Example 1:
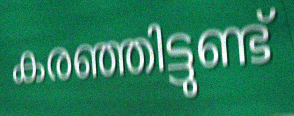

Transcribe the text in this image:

കരഞ്ഞിട്ടുണ്ട്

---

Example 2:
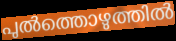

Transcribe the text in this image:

പുൽത്തൊഴുത്തിൽ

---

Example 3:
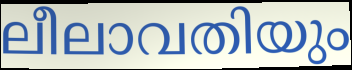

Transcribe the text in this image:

ലീലാവതിയും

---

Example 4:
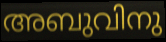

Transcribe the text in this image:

അബുവിനു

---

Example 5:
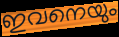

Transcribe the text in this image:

ഇവനെയും